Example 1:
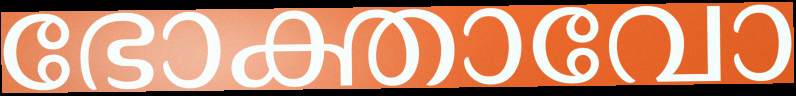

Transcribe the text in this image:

ഭോക്താവോ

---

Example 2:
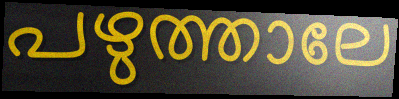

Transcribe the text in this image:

പഴുത്താലേ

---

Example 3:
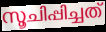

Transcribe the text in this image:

സൂചിപ്പിച്ചത്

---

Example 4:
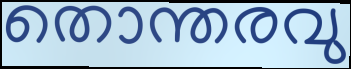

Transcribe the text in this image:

തൊന്തരവു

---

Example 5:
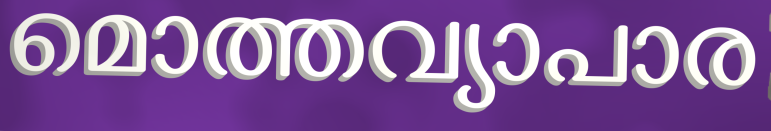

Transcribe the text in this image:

മൊത്തവ്യാപാര